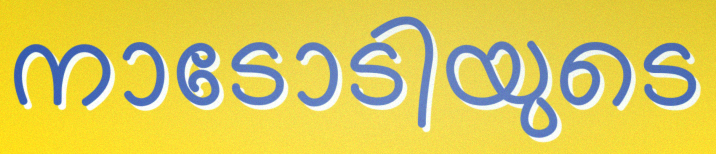
നാടോടിയുടെ